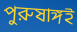
পুরুষাঙ্গই